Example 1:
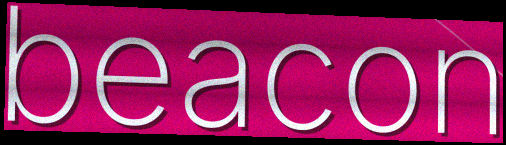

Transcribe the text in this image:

beacon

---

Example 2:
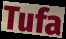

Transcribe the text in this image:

Tufa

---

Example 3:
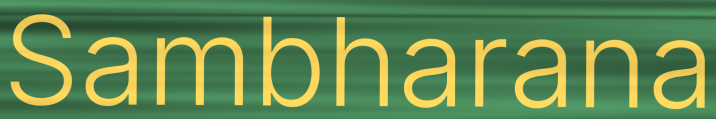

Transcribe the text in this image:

Sambharana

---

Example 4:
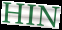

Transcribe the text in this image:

HIN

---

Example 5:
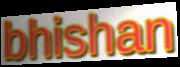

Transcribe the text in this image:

bhishan